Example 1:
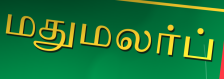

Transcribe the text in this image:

மதுமலர்ப்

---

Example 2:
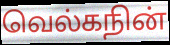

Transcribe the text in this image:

வெல்கநின்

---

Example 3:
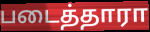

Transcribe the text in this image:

படைத்தாரா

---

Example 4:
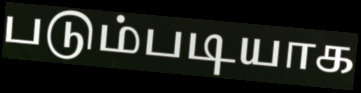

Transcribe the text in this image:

படும்படியாக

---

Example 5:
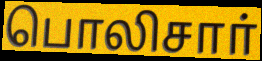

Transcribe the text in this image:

பொலிசார்